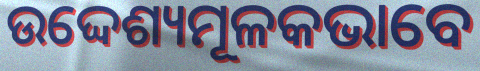
ଉଦ୍ଦେଶ୍ୟମୂଳକଭାବେ